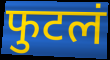
फुटलं